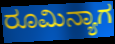
ರೂಮಿನ್ಯಾಗ